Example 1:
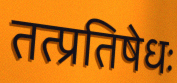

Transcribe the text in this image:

तत्प्रतिषेधः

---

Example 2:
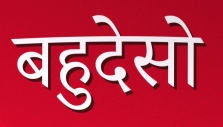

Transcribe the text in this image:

बहुदेसो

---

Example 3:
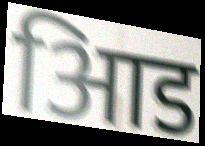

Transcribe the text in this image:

आिड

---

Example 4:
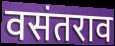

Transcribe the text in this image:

वसंतराव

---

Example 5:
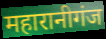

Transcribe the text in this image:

महारानीगंज